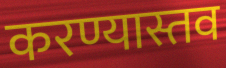
करण्यास्तव